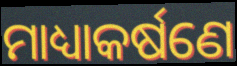
ମାଧ୍ୟାକର୍ଷଣେ